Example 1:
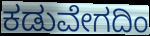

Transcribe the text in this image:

ಕಡುವೇಗದಿಂ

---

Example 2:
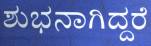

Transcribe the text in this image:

ಶುಭನಾಗಿದ್ದರೆ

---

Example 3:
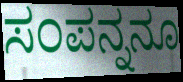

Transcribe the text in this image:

ಸಂಪನ್ನನೂ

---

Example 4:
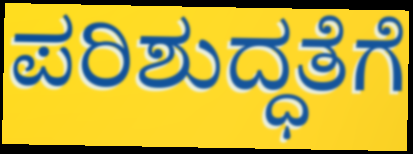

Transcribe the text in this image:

ಪರಿಶುದ್ಧತೆಗೆ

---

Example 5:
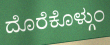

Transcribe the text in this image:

ದೊರೆಕೊಳ್ಗುಂ